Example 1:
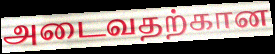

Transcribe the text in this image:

அடைவதற்கான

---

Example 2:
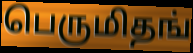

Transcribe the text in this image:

பெருமிதங்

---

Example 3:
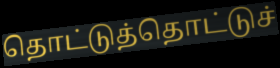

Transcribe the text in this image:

தொட்டுத்தொட்டுச்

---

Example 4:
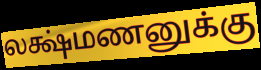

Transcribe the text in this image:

லக்ஷ்மணனுக்கு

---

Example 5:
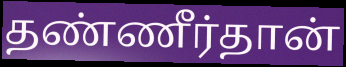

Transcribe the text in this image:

தண்ணீர்தான்